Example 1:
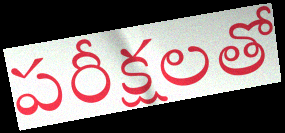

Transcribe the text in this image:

పరీక్షలతో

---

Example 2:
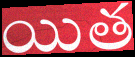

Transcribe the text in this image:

యిత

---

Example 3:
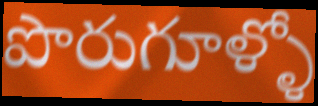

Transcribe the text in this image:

పొరుగూళ్ళో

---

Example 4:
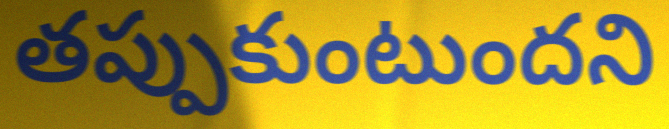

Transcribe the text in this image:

తప్పుకుంటుందని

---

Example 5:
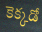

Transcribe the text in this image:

కెక్కడో